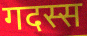
गदस्स